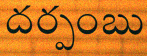
దర్పంబు